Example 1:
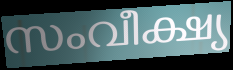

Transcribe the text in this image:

സംവീക്ഷ്യ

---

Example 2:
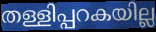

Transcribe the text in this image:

തള്ളിപ്പറകയില്ല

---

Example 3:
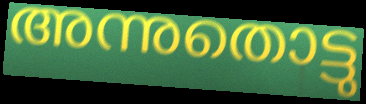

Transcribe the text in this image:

അന്നുതൊട്ടു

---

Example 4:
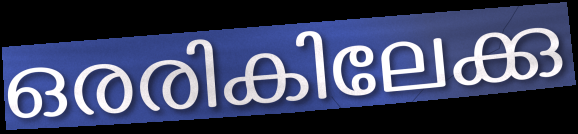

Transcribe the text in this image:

ഒരരികിലേക്കു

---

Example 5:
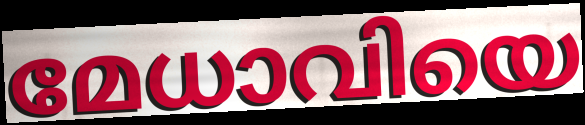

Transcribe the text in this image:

മേധാവിയെ